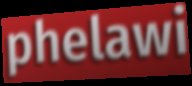
phelawi